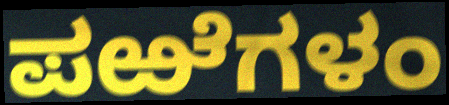
ಪಱೆಗಳಂ